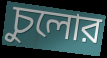
চুলোর